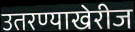
उतरण्याखेरीज